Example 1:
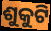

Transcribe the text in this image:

ଶୁକୁଟି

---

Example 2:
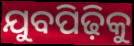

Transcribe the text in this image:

ଯୁବପିଢ଼ିକୁ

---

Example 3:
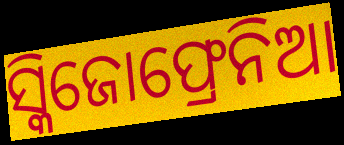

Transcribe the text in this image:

ସ୍କିଜୋଫ୍ରେନିଆ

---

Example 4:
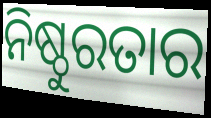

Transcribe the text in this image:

ନିଷ୍ଠୁରତାର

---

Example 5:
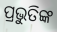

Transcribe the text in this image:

ପ୍ରଭୁତିଙ୍କ